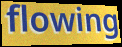
flowing